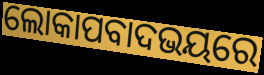
ଲୋକାପବାଦଭୟରେ